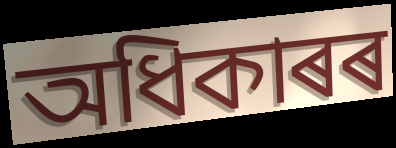
অধিকাৰৰ